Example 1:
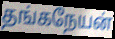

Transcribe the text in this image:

தங்கநேயன்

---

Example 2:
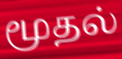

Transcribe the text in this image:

மூதல்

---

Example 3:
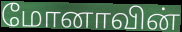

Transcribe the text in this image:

மோனாவின்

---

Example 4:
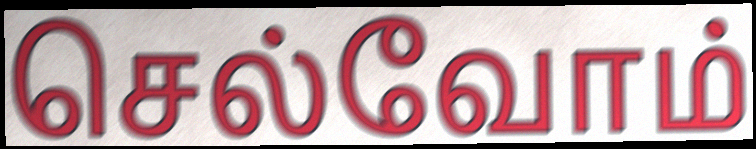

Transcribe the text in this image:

செல்வோம்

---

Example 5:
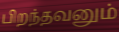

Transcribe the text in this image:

பிறந்தவனும்